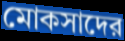
মোকসাদের